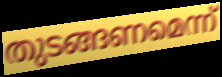
തുടങ്ങണമെന്ന്